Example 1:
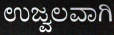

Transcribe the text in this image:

ಉಜ್ವಲವಾಗಿ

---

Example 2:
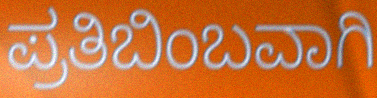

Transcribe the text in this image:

ಪ್ರತಿಬಿಂಬವಾಗಿ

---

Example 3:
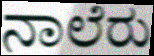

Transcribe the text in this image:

ನಾಲೆರು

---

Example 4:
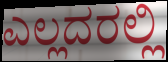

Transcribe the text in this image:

ಎಲ್ಲದರಲ್ಲಿ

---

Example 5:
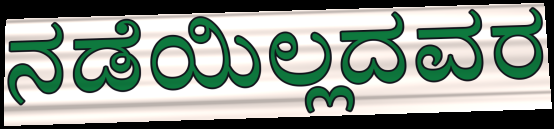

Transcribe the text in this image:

ನಡೆಯಿಲ್ಲದವರ